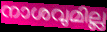
നാശവുമില്ല